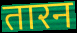
तारन